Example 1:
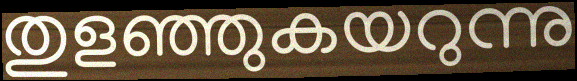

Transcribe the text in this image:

തുളഞ്ഞുകയറുന്നു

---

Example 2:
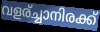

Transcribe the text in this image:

വളര്ച്ചാനിരക്ക്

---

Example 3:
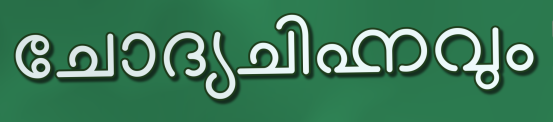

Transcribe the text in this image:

ചോദ്യചിഹ്നവും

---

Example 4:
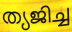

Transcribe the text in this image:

ത്യജിച്ച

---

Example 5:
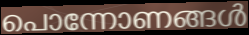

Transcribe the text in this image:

പൊന്നോണങ്ങൾ